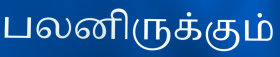
பலனிருக்கும்